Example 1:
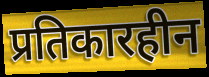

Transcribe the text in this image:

प्रतिकारहीन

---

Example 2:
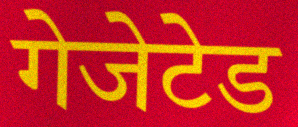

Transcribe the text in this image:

गेजेटेड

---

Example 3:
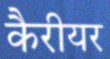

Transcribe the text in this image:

कैरीयर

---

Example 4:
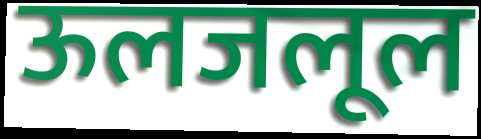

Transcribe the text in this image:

ऊलजलूल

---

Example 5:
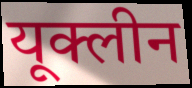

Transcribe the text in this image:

यूक्लीन